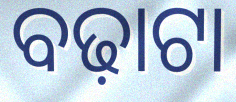
ବଢ଼ାଟା